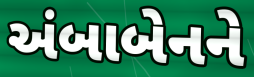
અંબાબેનને